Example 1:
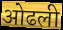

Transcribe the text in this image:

ओढली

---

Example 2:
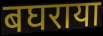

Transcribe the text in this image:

बघराया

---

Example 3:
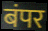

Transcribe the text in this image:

बंपर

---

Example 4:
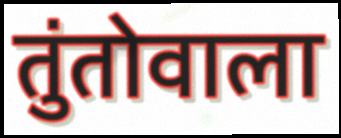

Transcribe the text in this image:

तुंतोवाला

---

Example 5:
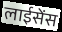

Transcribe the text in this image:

लाईसेंस